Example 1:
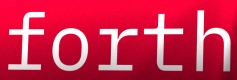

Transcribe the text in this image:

forth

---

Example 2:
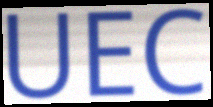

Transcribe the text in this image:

UEC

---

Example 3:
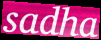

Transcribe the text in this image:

sadha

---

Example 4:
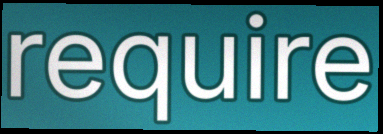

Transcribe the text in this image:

require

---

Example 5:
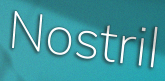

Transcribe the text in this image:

Nostril